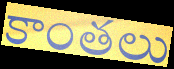
కాంతలు